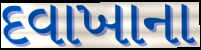
દવાખાના